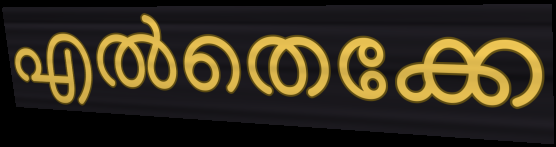
എൽതെക്കേ